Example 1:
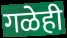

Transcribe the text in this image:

गळेही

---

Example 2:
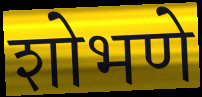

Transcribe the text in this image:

शोभणे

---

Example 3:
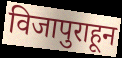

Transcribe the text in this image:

विजापुराहून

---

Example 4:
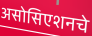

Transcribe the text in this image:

असोसिएशनचे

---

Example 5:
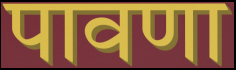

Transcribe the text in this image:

पावणा